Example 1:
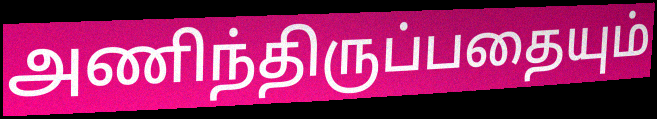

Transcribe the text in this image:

அணிந்திருப்பதையும்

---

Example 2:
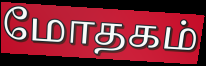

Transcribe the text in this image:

மோதகம்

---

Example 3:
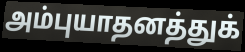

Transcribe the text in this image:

அம்புயாதனத்துக்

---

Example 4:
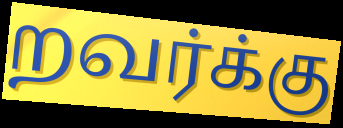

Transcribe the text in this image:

றவர்க்கு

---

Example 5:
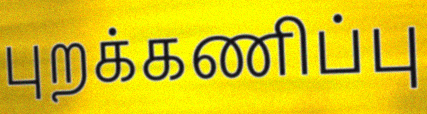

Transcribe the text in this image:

புறக்கணிப்பு